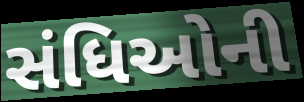
સંધિઓની